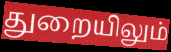
துறையிலும்